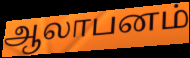
ஆலாபனம்